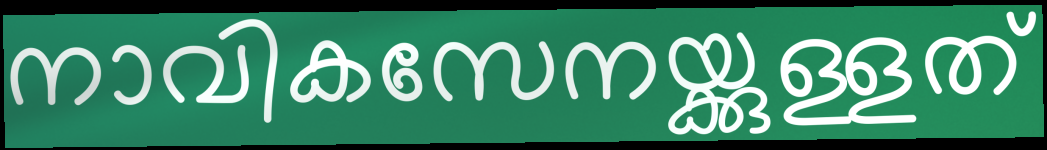
നാവികസേനയ്ക്കുള്ളത്